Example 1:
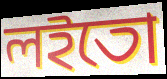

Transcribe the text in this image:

লইতো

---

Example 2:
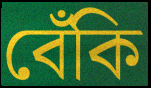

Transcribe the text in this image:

বেঁকি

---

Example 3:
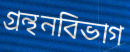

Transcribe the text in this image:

গ্রন্থনবিভাগ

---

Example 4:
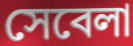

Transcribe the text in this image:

সেবেলা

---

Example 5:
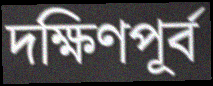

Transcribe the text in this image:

দক্ষিণপূর্ব